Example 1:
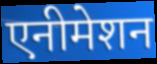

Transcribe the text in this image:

एनीमेशन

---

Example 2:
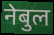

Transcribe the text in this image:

नेबुल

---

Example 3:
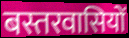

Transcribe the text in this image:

बस्तरवासियों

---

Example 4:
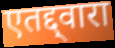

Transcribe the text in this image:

एतद्द्वारा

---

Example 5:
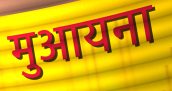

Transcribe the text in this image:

मुआयना